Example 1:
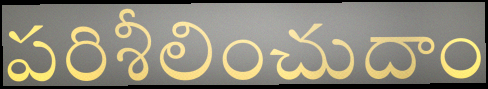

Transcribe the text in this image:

పరిశీలించుదాం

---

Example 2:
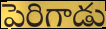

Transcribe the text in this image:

పెరిగాడు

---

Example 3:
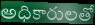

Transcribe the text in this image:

అధికారులతో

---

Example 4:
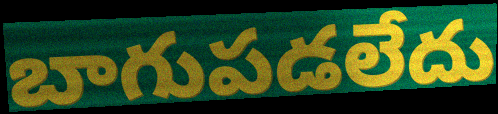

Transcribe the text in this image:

బాగుపడలేదు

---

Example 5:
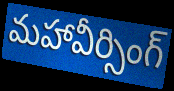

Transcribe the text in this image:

మహావీర్సింగ్